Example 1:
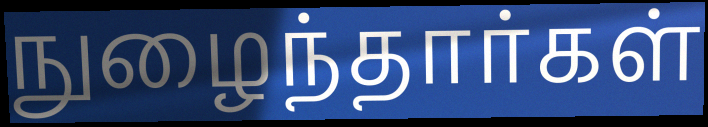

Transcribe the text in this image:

நுழைந்தார்கள்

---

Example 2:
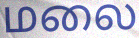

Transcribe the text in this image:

மலை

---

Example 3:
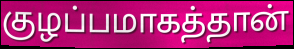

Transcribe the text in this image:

குழப்பமாகத்தான்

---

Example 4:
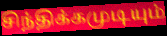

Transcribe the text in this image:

சிந்திக்கமுடியும்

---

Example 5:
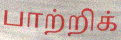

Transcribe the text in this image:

பாற்றிக்